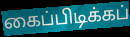
கைப்பிடிக்கப்